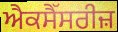
ਐਕਸੈੱਸਰੀਜ਼